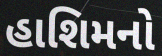
હાશિમનો